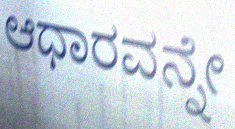
ಆಧಾರವನ್ನೇ